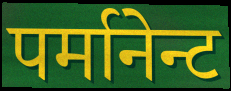
पर्मानेन्ट